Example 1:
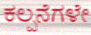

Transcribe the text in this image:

ಕಲ್ಪನೆಗಳೇ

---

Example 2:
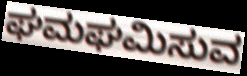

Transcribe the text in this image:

ಘಮಘಮಿಸುವ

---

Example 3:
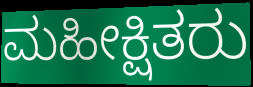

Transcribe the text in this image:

ಮಹೀಕ್ಷಿತರು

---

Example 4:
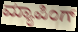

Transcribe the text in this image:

ಮ್ಯಾಪಿಂಗ್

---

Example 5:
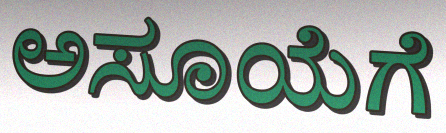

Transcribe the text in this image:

ಅಸೂಯೆಗೆ